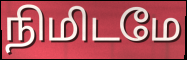
நிமிடமே